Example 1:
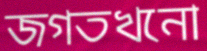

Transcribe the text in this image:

জগতখনো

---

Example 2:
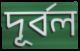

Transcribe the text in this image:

দূৰ্বল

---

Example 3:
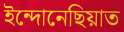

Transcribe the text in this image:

ইন্দোনেছিয়াত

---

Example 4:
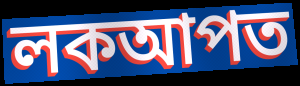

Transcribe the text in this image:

লকআপত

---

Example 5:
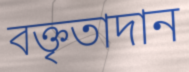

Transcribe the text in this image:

বক্তৃতাদান